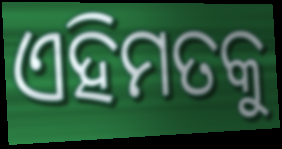
ଏହିମତକୁ